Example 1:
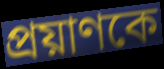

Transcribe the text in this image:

প্রয়াণকে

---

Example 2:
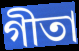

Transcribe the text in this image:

গীতা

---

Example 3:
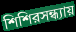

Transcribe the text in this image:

শিশিরসন্ধ্যায়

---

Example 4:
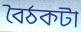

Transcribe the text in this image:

বৈঠকটা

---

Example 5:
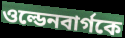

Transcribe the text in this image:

ওল্ডেনবার্গকে